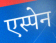
एस्पेन